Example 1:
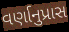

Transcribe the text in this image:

વર્ણાનુપ્રાસ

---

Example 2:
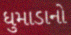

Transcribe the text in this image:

ધુમાડાનો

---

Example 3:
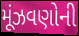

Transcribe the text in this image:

મૂંઝવણોની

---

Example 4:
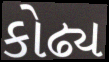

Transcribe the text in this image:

કોઢ્ય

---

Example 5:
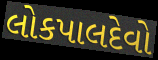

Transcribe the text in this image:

લોકપાલદેવો